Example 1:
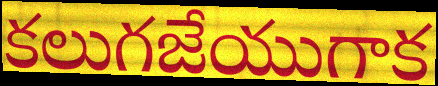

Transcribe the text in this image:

కలుగజేయుగాక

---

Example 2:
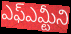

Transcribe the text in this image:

ఎఫ్ఎమ్టీని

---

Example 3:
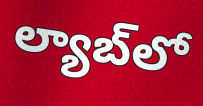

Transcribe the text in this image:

ల్యాబ్‌లో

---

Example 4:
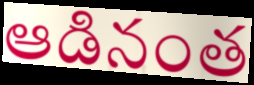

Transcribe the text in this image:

ఆడినంత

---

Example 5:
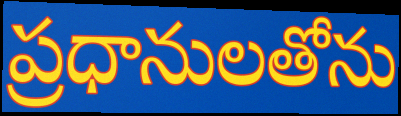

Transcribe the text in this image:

ప్రధానులతోను